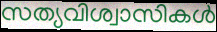
സത്യവിശ്വാസികൾ